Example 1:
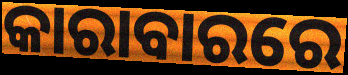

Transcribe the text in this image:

କାରାବାରରେ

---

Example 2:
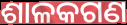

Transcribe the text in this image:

ଶାଳକଗଣ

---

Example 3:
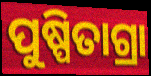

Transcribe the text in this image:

ପୁଷ୍ପିତାଗ୍ରା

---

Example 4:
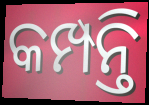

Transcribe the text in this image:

କମ୍ପନ୍ତି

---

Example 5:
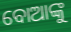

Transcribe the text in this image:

ବୋଆଙ୍କୁ